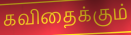
கவிதைக்கும்